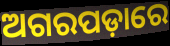
ଅଗରପଡ଼ାରେ